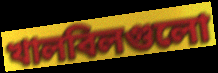
খালবিলগুলো